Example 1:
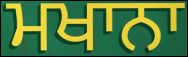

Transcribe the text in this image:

ਮਖਾਨਾ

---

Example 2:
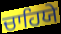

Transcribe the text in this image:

ਚਾਹਿਯੇ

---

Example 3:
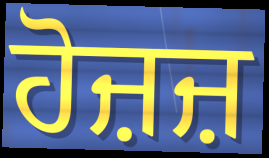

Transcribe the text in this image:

ਹੋਜ਼ਜ਼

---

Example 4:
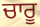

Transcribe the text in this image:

ਚਾਰੂ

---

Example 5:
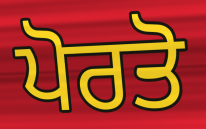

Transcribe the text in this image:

ਪੋਰਤੋ